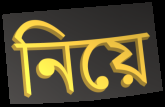
নিয়ে